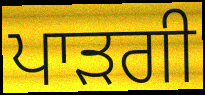
ਪਾੜਗੀ